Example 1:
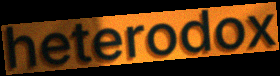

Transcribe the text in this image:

heterodox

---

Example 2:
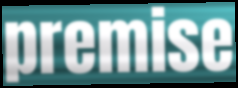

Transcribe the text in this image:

premise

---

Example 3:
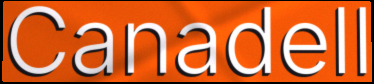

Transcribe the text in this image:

Canadell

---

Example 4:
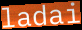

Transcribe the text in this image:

ladai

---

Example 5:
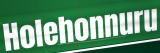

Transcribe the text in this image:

Holehonnuru